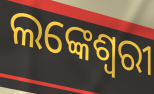
ଲଙ୍କେଶ୍ଵରୀ